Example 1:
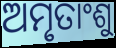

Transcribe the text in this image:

ଅମୃତାଂଶୁ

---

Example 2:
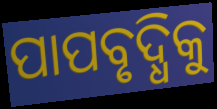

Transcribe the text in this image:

ପାପବୃଦ୍ଧିକୁ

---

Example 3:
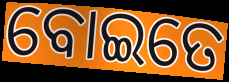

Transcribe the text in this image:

ବୋଇତେ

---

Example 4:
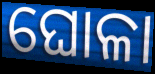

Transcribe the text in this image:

ଘୋଳା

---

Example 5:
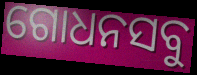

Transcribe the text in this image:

ଗୋଧନସବୁ